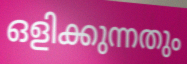
ഒളിക്കുന്നതും